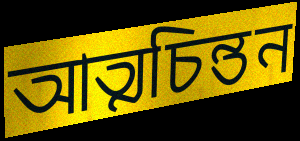
আত্মচিন্তন